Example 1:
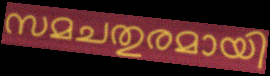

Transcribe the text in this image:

സമചതുരമായി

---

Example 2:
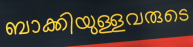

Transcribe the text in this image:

ബാക്കിയുള്ളവരുടെ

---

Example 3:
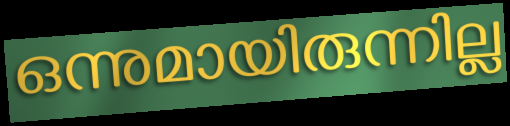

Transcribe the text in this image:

ഒന്നുമായിരുന്നില്ല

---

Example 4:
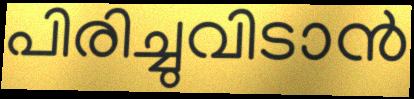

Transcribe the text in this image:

പിരിച്ചുവിടാൻ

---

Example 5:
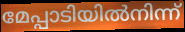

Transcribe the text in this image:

മേപ്പാടിയിൽനിന്ന്